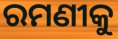
ରମଣୀକୁ